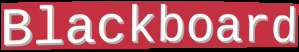
Blackboard